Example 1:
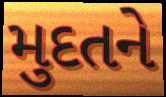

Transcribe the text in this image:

મુદતને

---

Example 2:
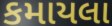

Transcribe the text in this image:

કમાયલા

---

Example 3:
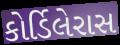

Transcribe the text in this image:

કોર્ડિલેરાસ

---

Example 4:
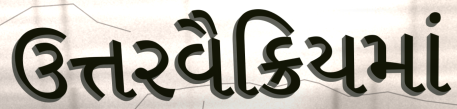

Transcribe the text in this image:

ઉત્તરવૈક્રિયમાં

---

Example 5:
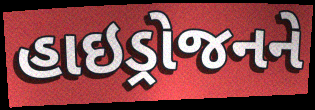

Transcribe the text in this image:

હાઇડ્રોજનને